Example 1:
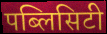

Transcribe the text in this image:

पब्लिसिटी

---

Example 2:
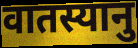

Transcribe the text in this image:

वातस्यानु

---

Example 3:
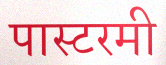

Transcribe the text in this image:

पास्टरमी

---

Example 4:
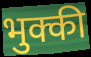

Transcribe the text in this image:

भुक्की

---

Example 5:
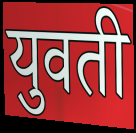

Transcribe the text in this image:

युवती